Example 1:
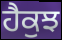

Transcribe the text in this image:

ਹੈਕੁਝ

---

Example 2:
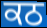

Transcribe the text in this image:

ਕਠ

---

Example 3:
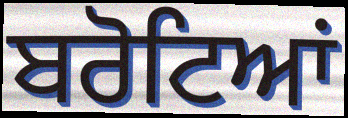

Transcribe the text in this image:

ਬਰੋਟਿਆਂ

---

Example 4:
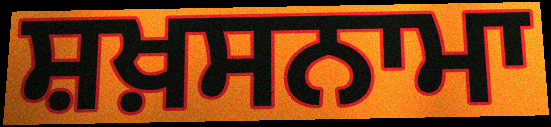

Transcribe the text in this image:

ਸ਼ਖ਼ਸਨਾਮਾ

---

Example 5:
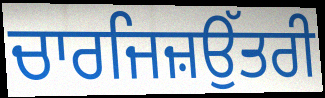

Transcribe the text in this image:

ਚਾਰਜਿਜ਼ਉੱਤਰੀ